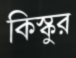
কিস্কুর